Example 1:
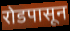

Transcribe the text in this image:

रोडपासून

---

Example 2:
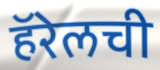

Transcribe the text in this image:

हॅरेलची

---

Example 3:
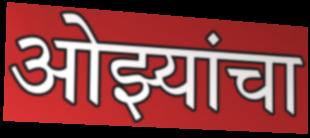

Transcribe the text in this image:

ओझ्यांचा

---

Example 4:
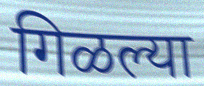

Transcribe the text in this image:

गिळल्या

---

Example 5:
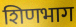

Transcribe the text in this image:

शिणभाग